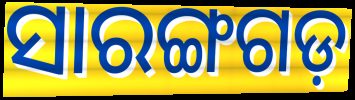
ସାରଙ୍ଗଗଡ଼